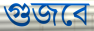
গুজবে